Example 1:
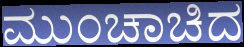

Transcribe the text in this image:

ಮುಂಚಾಚಿದ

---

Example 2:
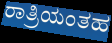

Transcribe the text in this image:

ರಾತ್ರಿಯಂತಹ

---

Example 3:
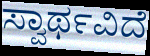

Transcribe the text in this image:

ಸ್ವಾರ್ಥವಿದೆ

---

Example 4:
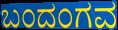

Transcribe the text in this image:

ಬಂದಂಗವ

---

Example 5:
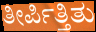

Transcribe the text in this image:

ತೀರ್ಪಿತ್ತಿತು